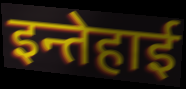
इन्तेहाई